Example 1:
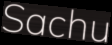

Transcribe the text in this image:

Sachu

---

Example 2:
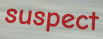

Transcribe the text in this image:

suspect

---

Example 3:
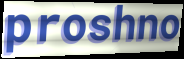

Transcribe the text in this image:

proshno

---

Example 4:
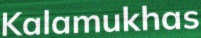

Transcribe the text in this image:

Kalamukhas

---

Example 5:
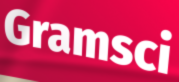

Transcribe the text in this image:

Gramsci